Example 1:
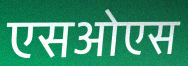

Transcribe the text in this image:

एसओएस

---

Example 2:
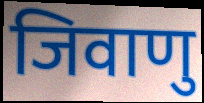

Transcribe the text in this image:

जिवाणु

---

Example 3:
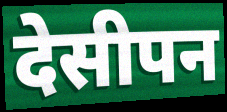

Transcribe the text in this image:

देसीपन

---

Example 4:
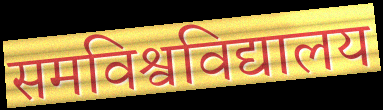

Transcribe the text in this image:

समविश्वविद्यालय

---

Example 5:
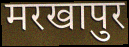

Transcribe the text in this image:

मरखापुर